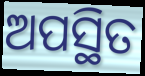
ଅପସ୍ଥିତ